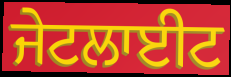
ਜੇਟਲਾਈਟ